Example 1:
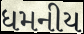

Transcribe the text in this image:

ધમનીય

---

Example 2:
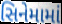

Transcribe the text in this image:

સિનેમામાં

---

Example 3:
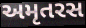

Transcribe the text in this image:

અમૃતરસ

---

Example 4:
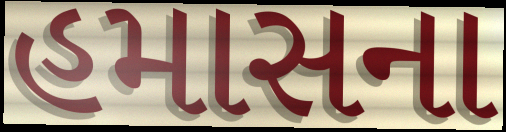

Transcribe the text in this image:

હમાસના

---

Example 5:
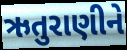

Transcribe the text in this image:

ઋતુરાણીને